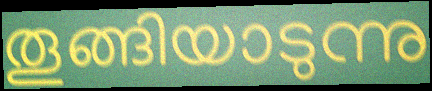
തൂങ്ങിയാടുന്നു